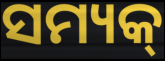
ସମ୍ୟକ୍